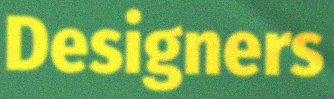
Designers